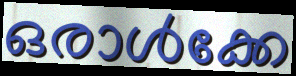
ഒരാൾക്കേ